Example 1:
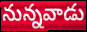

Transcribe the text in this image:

నున్నవాడు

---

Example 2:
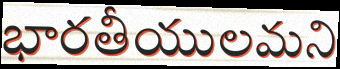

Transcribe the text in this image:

భారతీయులమని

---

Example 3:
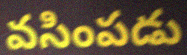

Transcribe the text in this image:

వసింపడు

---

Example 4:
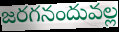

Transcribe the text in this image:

జరగనందువల్ల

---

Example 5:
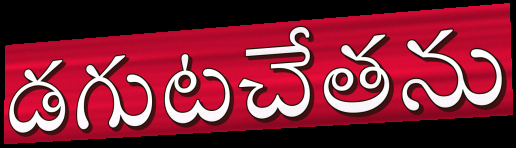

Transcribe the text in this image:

డగుటచేతను